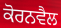
ਕੋਰਨਵੈਲ